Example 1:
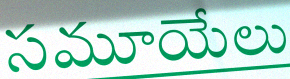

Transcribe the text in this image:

సమూయేలు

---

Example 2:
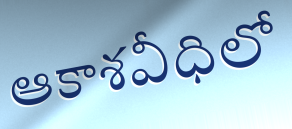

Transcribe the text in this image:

ఆకాశవీధిలో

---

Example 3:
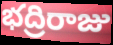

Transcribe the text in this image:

భద్రిరాజు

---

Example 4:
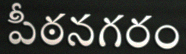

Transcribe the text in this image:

పీఠనగరం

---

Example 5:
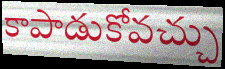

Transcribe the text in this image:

కాపాడుకోవచ్చు